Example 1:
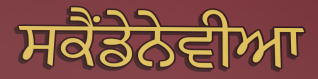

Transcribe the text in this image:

ਸਕੈਂਡੇਨੇਵੀਆ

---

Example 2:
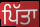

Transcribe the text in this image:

ਪਿੱਤਾ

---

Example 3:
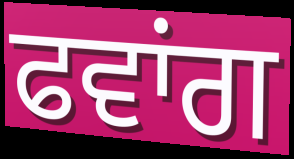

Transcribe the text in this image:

ਫਵਾਂਗ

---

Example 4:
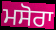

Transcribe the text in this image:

ਮਸੋਰਾ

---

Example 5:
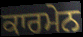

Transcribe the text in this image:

ਕਾਰਮੇਨ